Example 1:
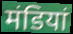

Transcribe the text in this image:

मंडियां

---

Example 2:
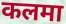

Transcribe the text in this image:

कलमा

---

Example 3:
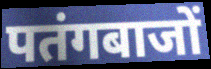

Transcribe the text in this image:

पतंगबाजों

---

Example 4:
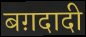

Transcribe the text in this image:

बग़दादी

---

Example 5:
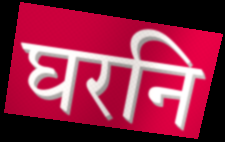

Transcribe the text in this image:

घरनि